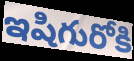
ఇషిగురోకి